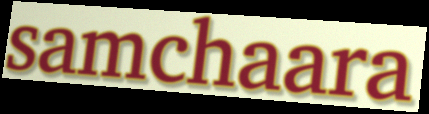
samchaara